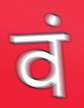
वं